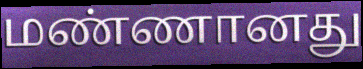
மண்ணானது